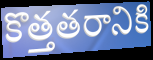
కొత్తతరానికి